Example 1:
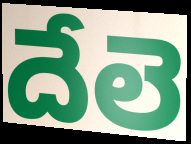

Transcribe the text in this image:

దేలె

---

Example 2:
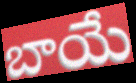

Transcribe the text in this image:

బాయే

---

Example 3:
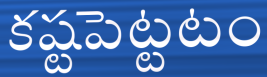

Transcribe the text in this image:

కష్టపెట్టటం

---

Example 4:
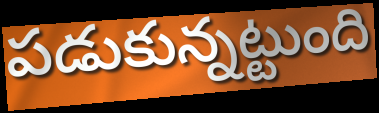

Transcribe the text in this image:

పడుకున్నట్టుంది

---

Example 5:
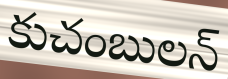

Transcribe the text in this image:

కుచంబులన్